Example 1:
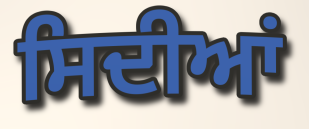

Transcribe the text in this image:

ਸਿਦੀਆਂ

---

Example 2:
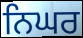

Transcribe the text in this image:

ਨਿਘਰ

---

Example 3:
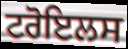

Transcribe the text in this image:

ਟਰੋਇਲਸ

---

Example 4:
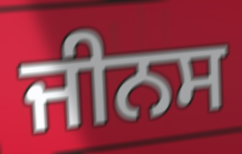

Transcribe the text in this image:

ਜੀਨਸ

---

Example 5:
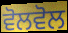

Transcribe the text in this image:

ਵੋਲਵੋਲ